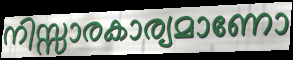
നിസ്സാരകാര്യമാണോ